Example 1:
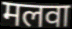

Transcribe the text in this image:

मलवा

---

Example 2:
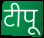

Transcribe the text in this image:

टीपू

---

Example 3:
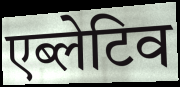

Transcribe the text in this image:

एब्लेटिव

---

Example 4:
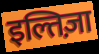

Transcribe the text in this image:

इल्तिज़ा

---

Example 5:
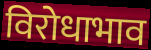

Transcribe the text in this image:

विरोधाभाव